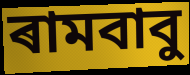
ৰামবাবু